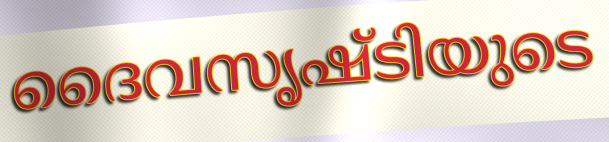
ദൈവസൃഷ്ടിയുടെ